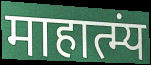
माहात्म्यं